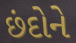
છંદોને